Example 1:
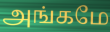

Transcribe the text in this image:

அங்கமே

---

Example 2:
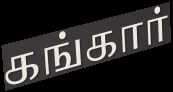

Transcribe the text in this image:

கங்கார்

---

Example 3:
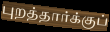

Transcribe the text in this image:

புறத்தார்க்குப்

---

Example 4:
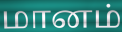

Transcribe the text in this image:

மானம்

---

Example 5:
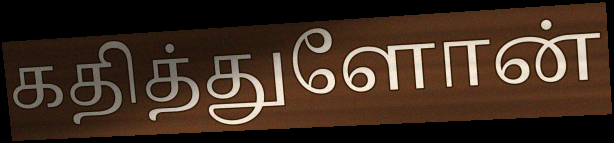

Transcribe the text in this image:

கதித்துளோன்